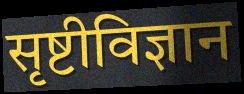
सृष्टीविज्ञान